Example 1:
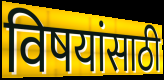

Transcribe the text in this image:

विषयांसाठी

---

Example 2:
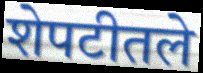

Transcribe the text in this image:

शेपटीतले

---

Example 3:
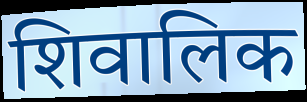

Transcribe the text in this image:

शिवालिक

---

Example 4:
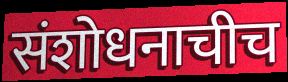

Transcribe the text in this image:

संशोधनाचीच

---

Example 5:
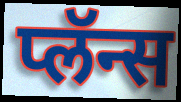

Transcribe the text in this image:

प्लॅन्स